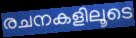
രചനകളിലൂടെ